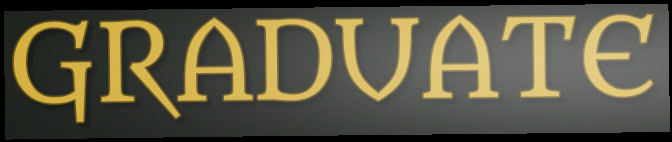
GRADUATE